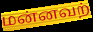
மன்னவற்